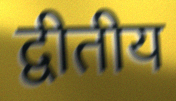
द्वीतीय